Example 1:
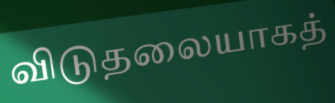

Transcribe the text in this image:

விடுதலையாகத்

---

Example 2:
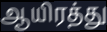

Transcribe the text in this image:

ஆயிரத்து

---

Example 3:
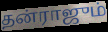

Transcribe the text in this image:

தன்ராஜும்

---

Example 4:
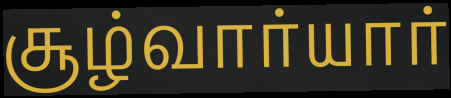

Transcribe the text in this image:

சூழ்வார்யார்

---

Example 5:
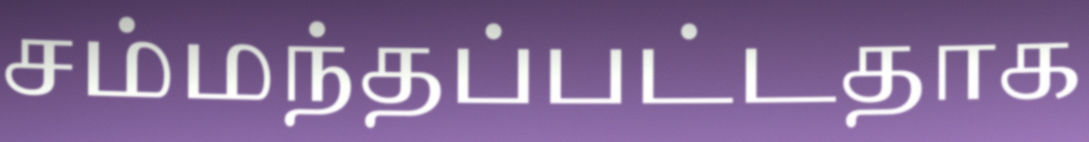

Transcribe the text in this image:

சம்மந்தப்பட்டதாக